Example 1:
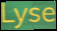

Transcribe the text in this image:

Lyse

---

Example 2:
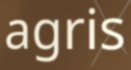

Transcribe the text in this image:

agris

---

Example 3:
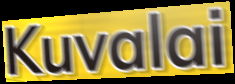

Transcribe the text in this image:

Kuvalai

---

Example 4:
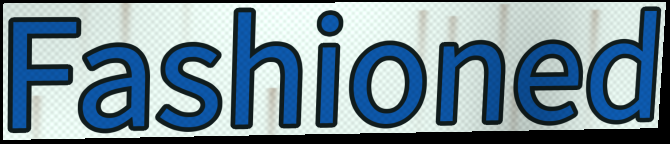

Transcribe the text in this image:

Fashioned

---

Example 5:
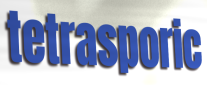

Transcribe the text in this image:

tetrasporic